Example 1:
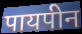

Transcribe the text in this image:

पायपीन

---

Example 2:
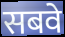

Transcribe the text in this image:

सबवे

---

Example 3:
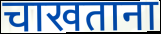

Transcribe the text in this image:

चाखताना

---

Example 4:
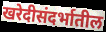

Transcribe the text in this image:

खरेदीसंदर्भातील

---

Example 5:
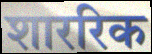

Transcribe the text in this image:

शाररिक